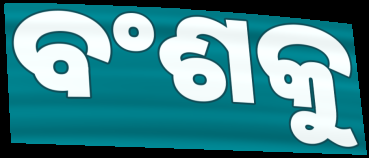
ବଂଶକୁ